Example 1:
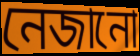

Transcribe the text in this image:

নেজানো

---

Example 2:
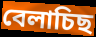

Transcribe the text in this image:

বেলাচিছ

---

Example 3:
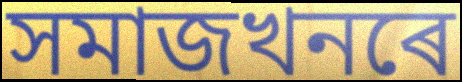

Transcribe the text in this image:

সমাজখনৰে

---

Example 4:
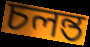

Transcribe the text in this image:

চলন্ত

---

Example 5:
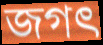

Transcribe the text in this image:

জগৎ